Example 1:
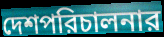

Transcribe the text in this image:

দেশপরিচালনার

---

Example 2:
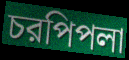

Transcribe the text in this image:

চরপিপলা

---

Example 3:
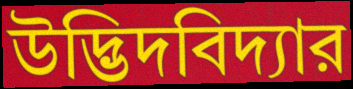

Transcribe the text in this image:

উদ্ভিদবিদ্যার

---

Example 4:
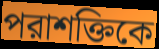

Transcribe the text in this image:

পরাশক্তিকে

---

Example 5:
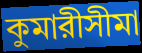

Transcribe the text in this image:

কুমারীসীমা